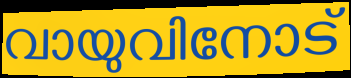
വായുവിനോട്